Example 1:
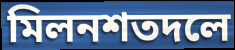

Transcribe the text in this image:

মিলনশতদলে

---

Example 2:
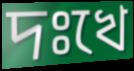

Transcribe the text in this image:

দঃখে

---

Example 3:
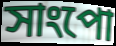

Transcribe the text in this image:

সাংপো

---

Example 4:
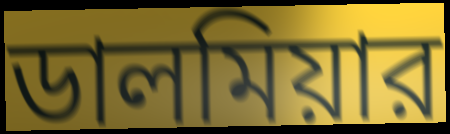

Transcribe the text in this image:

ডালমিয়ার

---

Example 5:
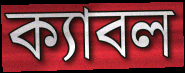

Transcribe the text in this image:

ক্যাবল